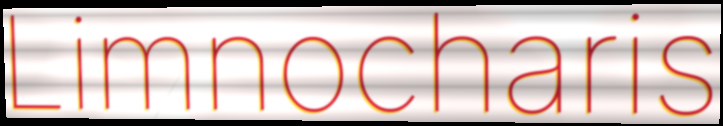
Limnocharis